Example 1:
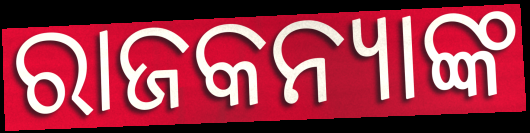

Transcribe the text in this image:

ରାଜକନ୍ୟାଙ୍କ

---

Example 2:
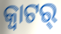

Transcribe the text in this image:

କ୍ୱାଟର୍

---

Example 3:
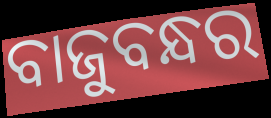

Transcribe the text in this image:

ବାଜୁବନ୍ଧର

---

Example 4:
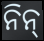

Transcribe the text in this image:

ନିନ୍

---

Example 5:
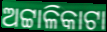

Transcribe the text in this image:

ଅଟ୍ଟାଳିକାଟା